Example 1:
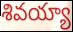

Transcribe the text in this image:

శివయ్యా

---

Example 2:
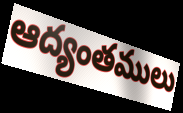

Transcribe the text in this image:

ఆద్యంతములు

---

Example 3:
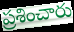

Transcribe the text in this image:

ప్రశించారు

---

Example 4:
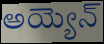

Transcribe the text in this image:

అయ్యెన్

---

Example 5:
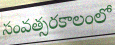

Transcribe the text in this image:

సంవత్సరకాలంలో